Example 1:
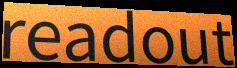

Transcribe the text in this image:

readout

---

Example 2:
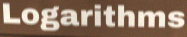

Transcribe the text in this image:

Logarithms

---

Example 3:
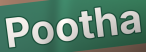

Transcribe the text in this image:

Pootha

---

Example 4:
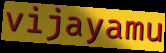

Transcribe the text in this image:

vijayamu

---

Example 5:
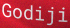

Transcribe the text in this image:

Godiji